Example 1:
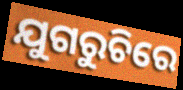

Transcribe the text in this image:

ଯୁଗରୁଚିରେ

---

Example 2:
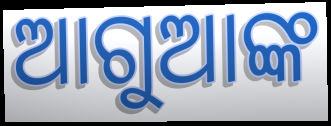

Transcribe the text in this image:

ଆଗୁଆଙ୍କ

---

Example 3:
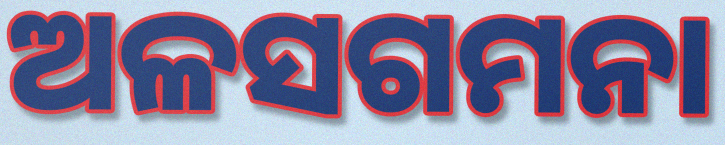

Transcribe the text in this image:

ଅଳସଗମନା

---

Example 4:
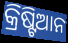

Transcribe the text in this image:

କ୍ରିଷ୍ଟିଆନ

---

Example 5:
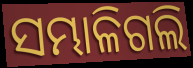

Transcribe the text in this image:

ସମ୍ଭାଳିଗଲି